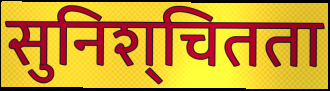
सुनिश्चितता